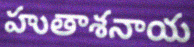
హుతాశనాయ